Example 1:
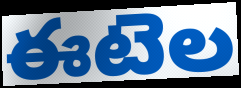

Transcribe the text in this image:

ఈటెల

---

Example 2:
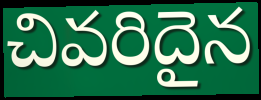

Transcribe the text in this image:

చివరిదైన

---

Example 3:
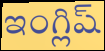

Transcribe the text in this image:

ఇంగ్లిష్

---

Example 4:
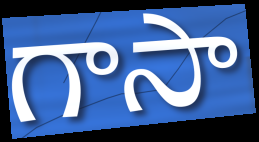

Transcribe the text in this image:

గాసా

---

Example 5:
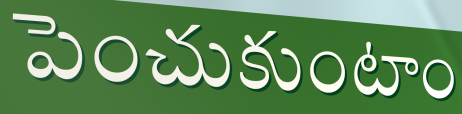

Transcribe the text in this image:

పెంచుకుంటాం